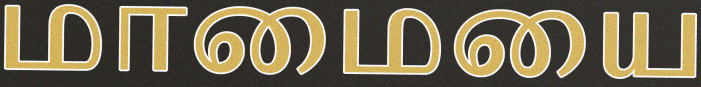
மாமையை